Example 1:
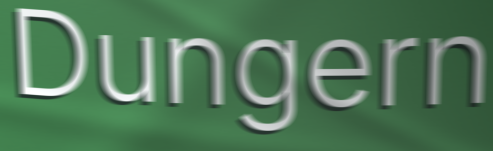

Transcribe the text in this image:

Dungern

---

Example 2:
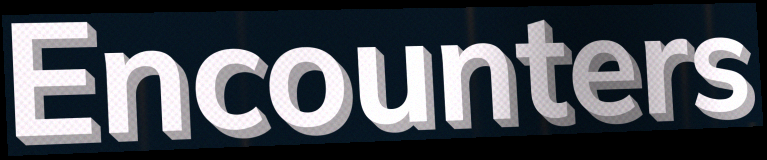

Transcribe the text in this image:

Encounters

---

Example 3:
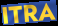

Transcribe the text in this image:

ITRA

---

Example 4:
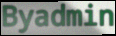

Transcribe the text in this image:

Byadmin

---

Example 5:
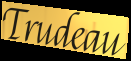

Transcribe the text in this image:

Trudeau